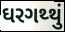
ઘરગથ્થું